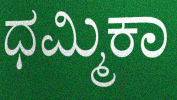
ಧಮ್ಮಿಕಾ